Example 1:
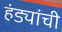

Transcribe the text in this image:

हंड्यांची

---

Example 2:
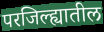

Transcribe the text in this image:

परजिल्ह्यातील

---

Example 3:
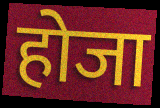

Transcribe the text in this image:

होजा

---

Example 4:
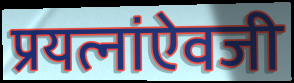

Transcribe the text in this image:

प्रयत्नांऐवजी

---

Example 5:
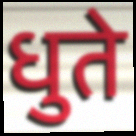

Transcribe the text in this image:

धुते